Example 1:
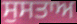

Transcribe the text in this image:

ਸੁਸਤਾਅ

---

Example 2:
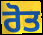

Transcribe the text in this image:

ਰੋਤ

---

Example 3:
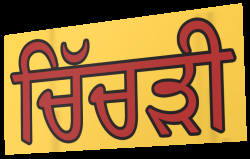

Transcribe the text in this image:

ਚਿੱਚੜੀ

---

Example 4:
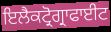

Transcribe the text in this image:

ਇਲੈਕਟ੍ਰੋਗ੍ਰਾਫਾਈਟ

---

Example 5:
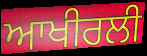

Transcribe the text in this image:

ਆਖੀਰਲੀ